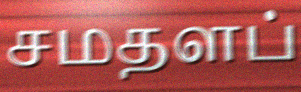
சமதளப்